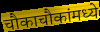
चौकाचौकांमध्ये